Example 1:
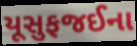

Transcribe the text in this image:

યૂસુફજઈના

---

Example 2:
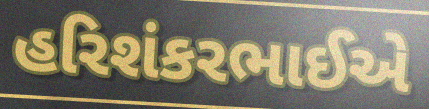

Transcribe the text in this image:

હરિશંકરભાઈએ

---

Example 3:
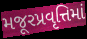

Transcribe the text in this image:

મજૂરપ્રવૃત્તિમાં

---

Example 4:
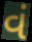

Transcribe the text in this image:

વં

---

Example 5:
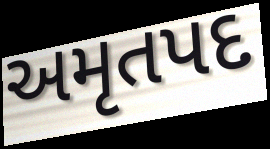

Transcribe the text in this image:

અમૃતપદ